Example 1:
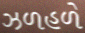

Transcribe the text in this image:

ઝળહળે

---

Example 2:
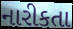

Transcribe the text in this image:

નારીકતા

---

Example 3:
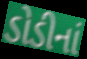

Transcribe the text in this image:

ડોડીનાં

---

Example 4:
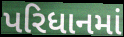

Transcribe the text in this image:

પરિધાનમાં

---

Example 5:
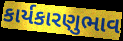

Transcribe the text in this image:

કાર્યકારણુભાવ